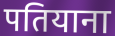
पतियाना